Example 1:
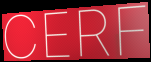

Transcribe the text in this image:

CERF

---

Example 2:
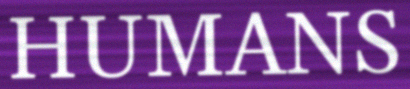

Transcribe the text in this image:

HUMANS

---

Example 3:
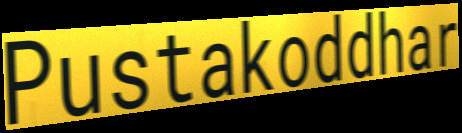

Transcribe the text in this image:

Pustakoddhar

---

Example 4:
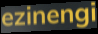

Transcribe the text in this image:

ezinengi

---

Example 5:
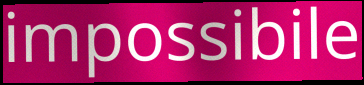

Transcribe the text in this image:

impossibile